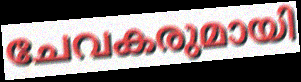
ചേവകരുമായി